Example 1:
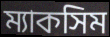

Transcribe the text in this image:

ম্যাকসিম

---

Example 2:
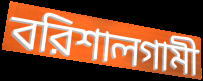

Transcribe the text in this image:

বরিশালগামী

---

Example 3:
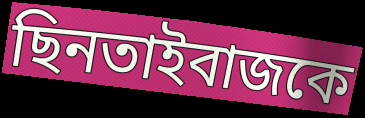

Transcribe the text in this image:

ছিনতাইবাজকে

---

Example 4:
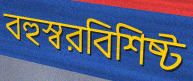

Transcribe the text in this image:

বহুস্বরবিশিষ্ট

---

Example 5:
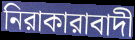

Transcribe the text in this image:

নিরাকারাবাদী